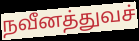
நவீனத்துவச்